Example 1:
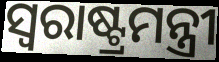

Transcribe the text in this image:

ସ୍ବରାଷ୍ଟ୍ରମନ୍ତ୍ରୀ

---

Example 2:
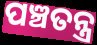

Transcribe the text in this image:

ପଞ୍ଚତନ୍ତ୍ର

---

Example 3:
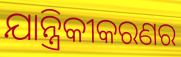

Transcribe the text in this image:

ଯାନ୍ତ୍ରିକୀକରଣର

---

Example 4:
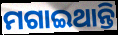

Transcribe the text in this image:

ମଗାଇଥାନ୍ତି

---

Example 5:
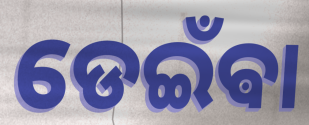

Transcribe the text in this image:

ଡେଇଁଵା